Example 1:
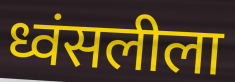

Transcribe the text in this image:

ध्वंसलीला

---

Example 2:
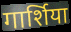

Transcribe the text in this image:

गार्शिया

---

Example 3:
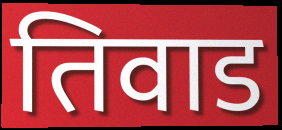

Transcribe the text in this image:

तिवाड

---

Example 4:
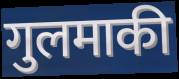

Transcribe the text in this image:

गुलमाकी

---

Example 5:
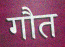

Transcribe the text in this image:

गौत